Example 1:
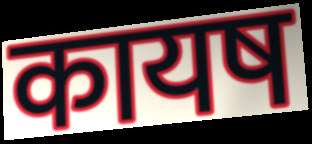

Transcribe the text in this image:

कायष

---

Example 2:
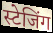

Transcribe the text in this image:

स्टेजिंग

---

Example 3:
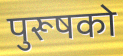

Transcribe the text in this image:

पुरूषको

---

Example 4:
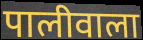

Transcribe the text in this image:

पालीवाला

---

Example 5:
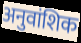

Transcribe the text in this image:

अनुवांशिक